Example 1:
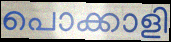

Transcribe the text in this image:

പൊക്കാളി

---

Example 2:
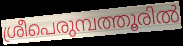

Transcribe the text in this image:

ശ്രീപെരുമ്പത്തൂരിൽ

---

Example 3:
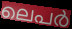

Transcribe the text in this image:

ലെപർ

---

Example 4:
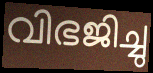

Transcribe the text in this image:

വിഭജിച്ചു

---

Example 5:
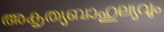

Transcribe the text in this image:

അകൃത്യബാഹുല്യവും